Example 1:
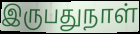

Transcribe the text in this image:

இருபதுநாள்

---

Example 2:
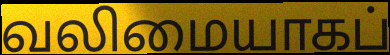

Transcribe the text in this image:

வலிமையாகப்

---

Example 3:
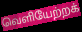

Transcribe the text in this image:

வெளியேற்றக்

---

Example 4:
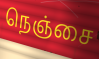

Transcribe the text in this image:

நெஞ்சை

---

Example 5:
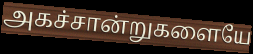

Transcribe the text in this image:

அகச்சான்றுகளையே